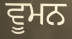
ਵੂਮਨ